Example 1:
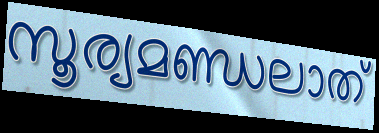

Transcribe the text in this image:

സൂര്യമണ്ഡലാത്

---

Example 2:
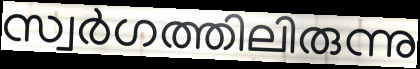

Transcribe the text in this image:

സ്വർഗത്തിലിരുന്നു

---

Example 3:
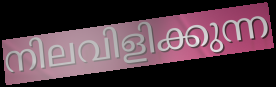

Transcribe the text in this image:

നിലവിളിക്കുന്ന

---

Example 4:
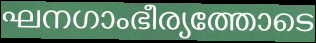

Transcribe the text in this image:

ഘനഗാംഭീര്യത്തോടെ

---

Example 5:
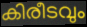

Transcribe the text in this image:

കിരീടവും